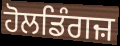
ਹੋਲਡਿੰਗਜ਼